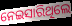
ନେଇସାରିଥିଲେ